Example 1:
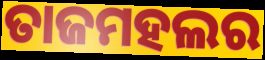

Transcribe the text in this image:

ତାଜମହଲର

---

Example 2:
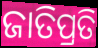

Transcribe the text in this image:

ଜାତିପ୍ରତି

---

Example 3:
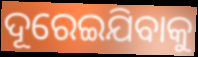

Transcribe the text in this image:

ଦୂରେଇଯିବାକୁ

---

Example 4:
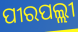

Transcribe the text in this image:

ପୀରପଲ୍ଲୀ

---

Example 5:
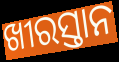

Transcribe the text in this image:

ଖୀରସ୍ତାନ